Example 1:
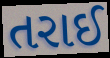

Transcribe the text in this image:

તરાઈ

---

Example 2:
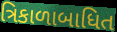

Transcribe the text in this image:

ત્રિકાળાબાધિત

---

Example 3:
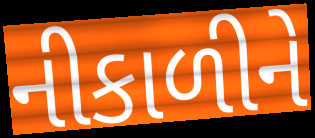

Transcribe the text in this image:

નીકાળીને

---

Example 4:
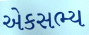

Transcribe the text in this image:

એકસભ્ય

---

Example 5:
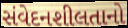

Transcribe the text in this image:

સંવેદનશીલતાનો